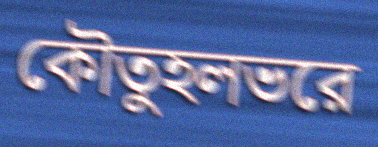
কৌতুহলভরে